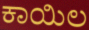
ಕಾಯಿಲ